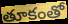
తూకంతో